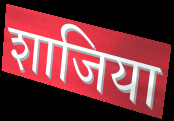
शाजिया